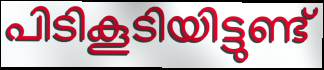
പിടികൂടിയിട്ടുണ്ട്